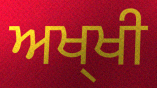
ਅਖ੍ਖੀ